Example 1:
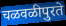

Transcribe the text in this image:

चळवळीपुरते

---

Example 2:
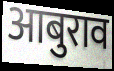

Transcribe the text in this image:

आबुराव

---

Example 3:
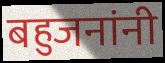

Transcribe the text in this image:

बहुजनांनी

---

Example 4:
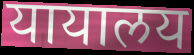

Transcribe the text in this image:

यायालय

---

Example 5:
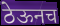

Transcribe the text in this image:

ठेऊनच